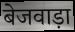
बेजवाड़ा